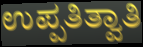
ಉಪ್ಪತಿತ್ವಾತಿ